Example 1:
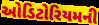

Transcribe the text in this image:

ઓડિટોરિયમની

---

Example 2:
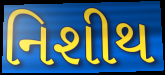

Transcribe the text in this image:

નિશીથ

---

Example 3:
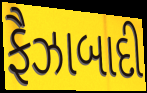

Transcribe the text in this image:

ફૈઝાબાદી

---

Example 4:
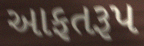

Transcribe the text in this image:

આફતરૂપ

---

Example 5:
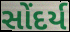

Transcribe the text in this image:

સોંદર્ય